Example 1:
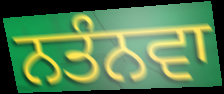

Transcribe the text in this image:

ਨਤੰਨਵਾ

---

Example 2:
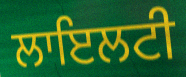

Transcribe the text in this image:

ਲਾਇਲਟੀ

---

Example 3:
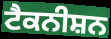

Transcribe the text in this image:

ਟੈਕਨੀਸ਼ਨ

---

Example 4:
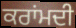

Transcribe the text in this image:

ਕਰਾਂਮਦੀ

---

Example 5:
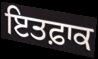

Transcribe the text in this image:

ਇਤਫ਼ਾਕ